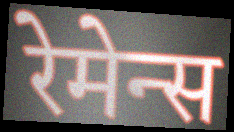
रेमेन्स